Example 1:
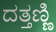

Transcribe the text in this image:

ದತ್ತಣ್ಣಿ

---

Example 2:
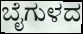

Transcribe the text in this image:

ಬೈಗುಳದ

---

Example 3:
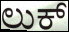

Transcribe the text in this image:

ಲುಕ್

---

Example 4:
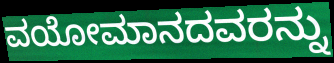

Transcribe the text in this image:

ವಯೋಮಾನದವರನ್ನು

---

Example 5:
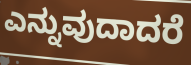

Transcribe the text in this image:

ಎನ್ನುವುದಾದರೆ